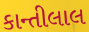
કાન્તીલાલ